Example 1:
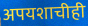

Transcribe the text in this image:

अपयशाचीही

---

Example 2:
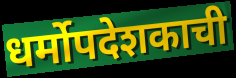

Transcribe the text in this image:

धर्मोपदेशकाची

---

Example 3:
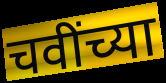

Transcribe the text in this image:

चवींच्या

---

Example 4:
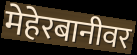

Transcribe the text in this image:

मेहेरबानीवर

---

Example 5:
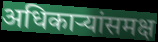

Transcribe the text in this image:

अधिकाऱ्यांसमक्ष